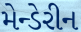
મેન્ડેરીન